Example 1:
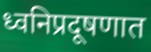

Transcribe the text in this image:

ध्वनिप्रदूषणात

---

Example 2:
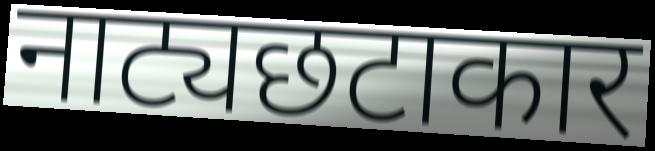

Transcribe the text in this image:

नाट्यछटाकार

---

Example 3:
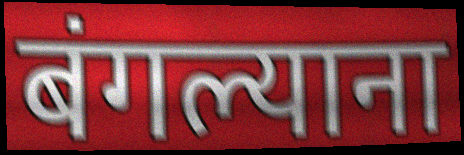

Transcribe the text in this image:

बंगल्याना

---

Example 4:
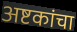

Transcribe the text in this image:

अष्टकांचा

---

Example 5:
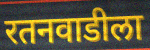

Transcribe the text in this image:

रतनवाडीला